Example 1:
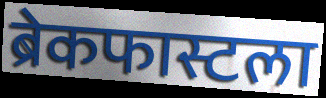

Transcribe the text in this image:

ब्रेकफास्टला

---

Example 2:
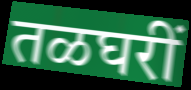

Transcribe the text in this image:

तळघरीं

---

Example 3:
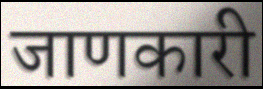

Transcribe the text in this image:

जाणकारी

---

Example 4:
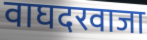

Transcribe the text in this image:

वाघदरवाजा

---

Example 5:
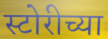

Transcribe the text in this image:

स्टोरीच्या